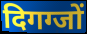
दिगग्जों